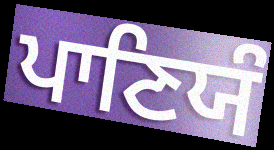
ਪਾਣਿਯੰ